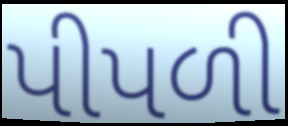
પીપળી